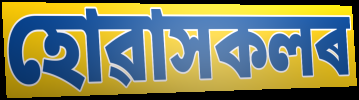
হোৱাসকলৰ